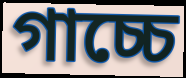
গাচ্চে